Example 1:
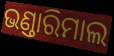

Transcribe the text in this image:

ଭଣ୍ଡାରିମାଲ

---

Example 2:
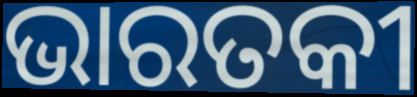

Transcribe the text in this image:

ଭାରତକୀ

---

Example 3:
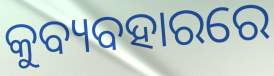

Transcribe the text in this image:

କୁବ୍ୟବହାରରେ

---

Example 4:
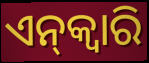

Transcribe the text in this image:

ଏନ୍‌କ୍ୱାରି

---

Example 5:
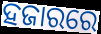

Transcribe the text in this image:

ହଜାରରେ